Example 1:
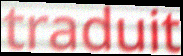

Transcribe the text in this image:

traduit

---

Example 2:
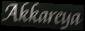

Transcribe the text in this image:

Akkareya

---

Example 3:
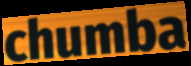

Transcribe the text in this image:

chumba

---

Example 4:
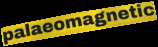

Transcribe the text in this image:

palaeomagnetic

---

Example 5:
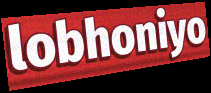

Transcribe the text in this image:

lobhoniyo